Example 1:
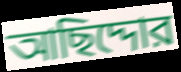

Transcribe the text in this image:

আছিদ্দোর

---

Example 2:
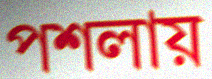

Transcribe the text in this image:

পশলায়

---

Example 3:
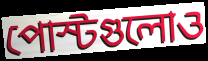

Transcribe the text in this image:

পোস্টগুলোও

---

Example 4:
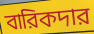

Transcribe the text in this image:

বারিকদার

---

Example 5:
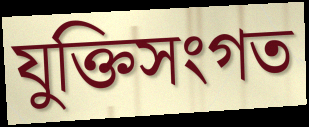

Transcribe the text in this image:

যুক্তিসংগত